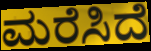
ಮರೆಸಿದೆ